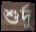
শুর্দু